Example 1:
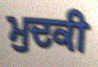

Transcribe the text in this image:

ਮੁਦਕੀ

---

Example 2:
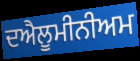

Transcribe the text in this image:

ਦਐਲੂਮੀਨੀਅਮ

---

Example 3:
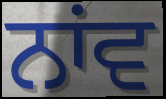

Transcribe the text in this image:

ਨਾਂਵ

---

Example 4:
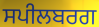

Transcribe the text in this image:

ਸਪੀਲਬਰਗ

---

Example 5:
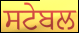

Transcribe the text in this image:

ਸਟੇਬਲ